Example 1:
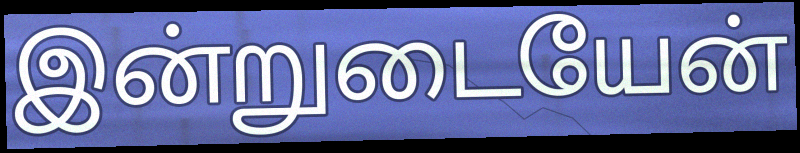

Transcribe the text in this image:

இன்றுடையேன்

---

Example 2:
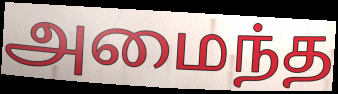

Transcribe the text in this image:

அமைந்த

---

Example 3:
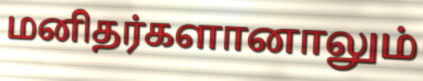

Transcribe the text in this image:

மனிதர்களானாலும்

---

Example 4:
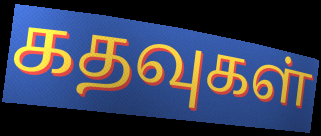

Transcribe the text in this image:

கதவுகள்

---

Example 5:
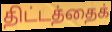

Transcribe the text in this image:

திட்டத்தைக்